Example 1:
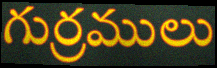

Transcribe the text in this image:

గుర్రములు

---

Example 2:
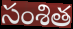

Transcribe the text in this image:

సంశిత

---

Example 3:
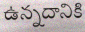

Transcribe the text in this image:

ఉన్నదానికి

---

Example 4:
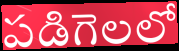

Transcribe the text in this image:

పడిగెలలో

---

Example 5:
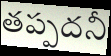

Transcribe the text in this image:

తప్పదనీ